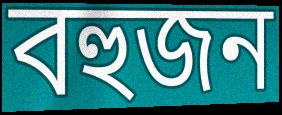
বহুজন